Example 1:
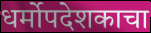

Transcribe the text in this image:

धर्मोपदेशकाचा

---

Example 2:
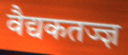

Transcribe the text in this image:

वैद्यकतज्ज्ञ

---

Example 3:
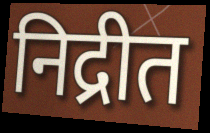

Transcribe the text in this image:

निद्रीत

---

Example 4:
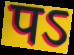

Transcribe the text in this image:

पऽ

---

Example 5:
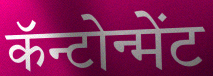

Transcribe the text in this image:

कॅन्टोन्मेंट